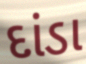
દાંડા